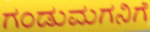
ಗಂಡುಮಗನಿಗೆ